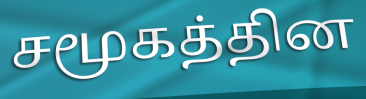
சமூகத்தின